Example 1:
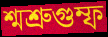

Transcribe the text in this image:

শ্মশ্রুগুম্ফ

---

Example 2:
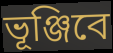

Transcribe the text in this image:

ভূঞ্জিবে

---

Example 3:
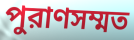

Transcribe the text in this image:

পুরাণসম্মত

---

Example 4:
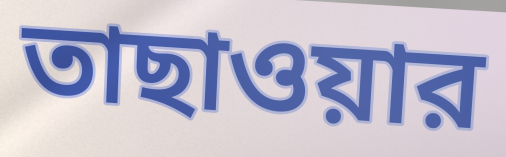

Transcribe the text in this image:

তাছাওয়ার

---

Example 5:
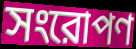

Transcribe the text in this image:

সংরোপণ